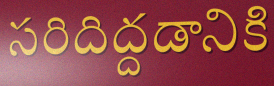
సరిదిద్దడానికి